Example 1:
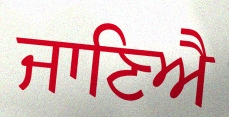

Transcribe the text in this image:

ਜਾਣਿਐ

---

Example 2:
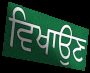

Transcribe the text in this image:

ਵਿਖਾਉਣ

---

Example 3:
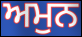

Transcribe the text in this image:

ਅਮੁਨ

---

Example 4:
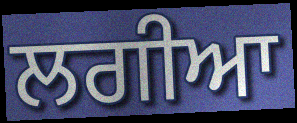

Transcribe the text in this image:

ਲਗੀਆ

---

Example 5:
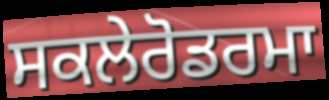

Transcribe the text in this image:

ਸਕਲੇਰੋਡਰਮਾ